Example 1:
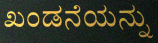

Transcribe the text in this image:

ಖಂಡನೆಯನ್ನು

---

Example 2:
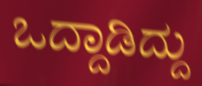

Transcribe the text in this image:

ಒದ್ದಾಡಿದ್ದು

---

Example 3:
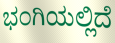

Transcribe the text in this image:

ಭಂಗಿಯಲ್ಲಿದೆ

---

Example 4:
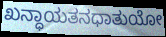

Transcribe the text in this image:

ಖನ್ಧಾಯತನಧಾತುಯೋ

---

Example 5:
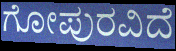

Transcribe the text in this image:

ಗೋಪುರವಿದೆ